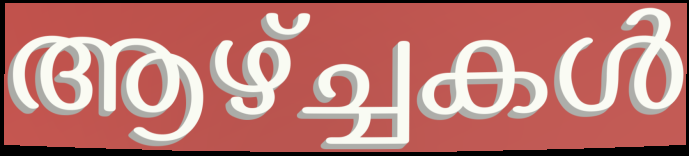
ആഴ്ച്ചകൾ